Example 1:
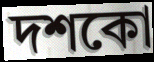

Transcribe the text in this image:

দশকো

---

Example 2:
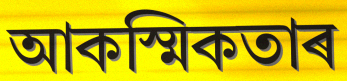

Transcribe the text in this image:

আকস্মিকতাৰ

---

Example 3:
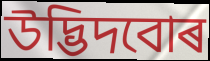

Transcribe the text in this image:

উদ্ভিদবোৰ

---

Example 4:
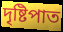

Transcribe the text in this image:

দৃষ্টিপাত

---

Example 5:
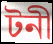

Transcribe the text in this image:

টনী